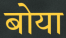
बोया